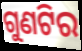
ଗୁଣଟିର